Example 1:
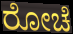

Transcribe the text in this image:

ರೋಚೆ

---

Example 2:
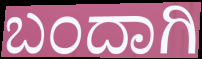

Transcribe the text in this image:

ಬಂದಾಗಿ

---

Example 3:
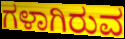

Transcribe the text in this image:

ಗಳಾಗಿರುವ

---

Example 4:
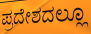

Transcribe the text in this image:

ಪ್ರದೇಶದಲ್ಲೂ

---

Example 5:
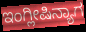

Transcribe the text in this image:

ಇಂಗ್ಲೀಷಿನ್ಯಾಗ